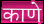
काणे